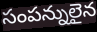
సంపన్నులైన